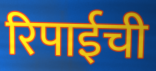
रिपाईची